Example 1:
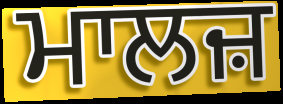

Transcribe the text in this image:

ਮਾਲਜ਼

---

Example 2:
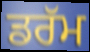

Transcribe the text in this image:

ਡਰੱਮ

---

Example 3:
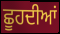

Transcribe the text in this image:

ਛੂਹਦੀਆਂ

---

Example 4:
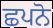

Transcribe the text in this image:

ਛਪਨੋ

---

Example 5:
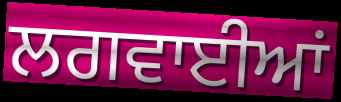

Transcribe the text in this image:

ਲਗਵਾਈਆਂ